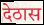
देठास